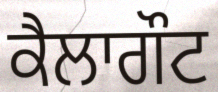
ਕੈਲਾਗੌਟ